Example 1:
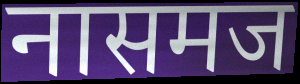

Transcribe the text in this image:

नासमज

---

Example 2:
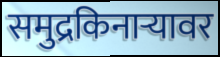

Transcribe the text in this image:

समुद्रकिनाऱ्यावर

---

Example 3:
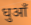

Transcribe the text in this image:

धुआँ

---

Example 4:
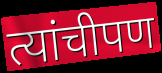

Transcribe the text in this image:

त्यांचीपण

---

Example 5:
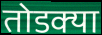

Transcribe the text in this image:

तोडक्या